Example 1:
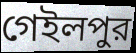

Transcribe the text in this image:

গেইলপুর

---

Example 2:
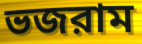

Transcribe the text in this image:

ভজরাম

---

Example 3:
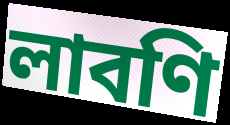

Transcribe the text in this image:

লাবণি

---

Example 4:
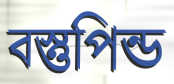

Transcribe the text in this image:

বস্তুপিন্ড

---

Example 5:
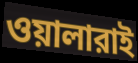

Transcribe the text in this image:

ওয়ালারাই